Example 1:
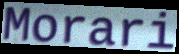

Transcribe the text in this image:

Morari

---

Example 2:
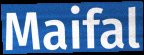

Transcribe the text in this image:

Maifal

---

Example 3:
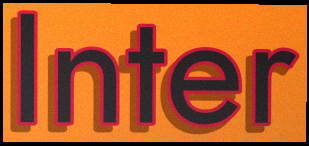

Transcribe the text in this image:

Inter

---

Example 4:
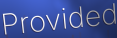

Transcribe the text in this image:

Provided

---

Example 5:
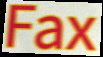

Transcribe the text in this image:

Fax